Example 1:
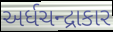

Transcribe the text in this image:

અર્ધચન્દ્રાકાર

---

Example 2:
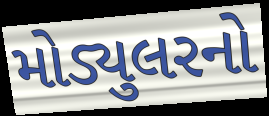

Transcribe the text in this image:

મોડ્યુલરનો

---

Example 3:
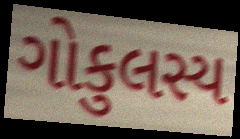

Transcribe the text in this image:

ગોકુલસ્ય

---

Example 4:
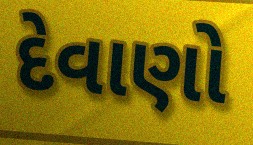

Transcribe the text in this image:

દેવાણો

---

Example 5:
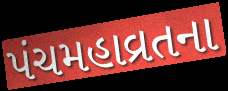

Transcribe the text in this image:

પંચમહાવ્રતના